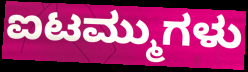
ಐಟಮ್ಮುಗಳು